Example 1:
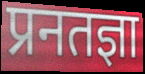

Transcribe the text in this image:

प्रनतज्ञा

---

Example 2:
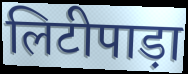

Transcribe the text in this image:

लिटीपाड़ा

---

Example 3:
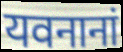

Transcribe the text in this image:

यवनानां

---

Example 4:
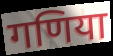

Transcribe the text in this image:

गणिया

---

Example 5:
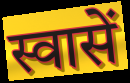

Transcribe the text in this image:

स्वासें